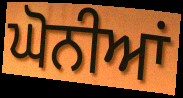
ਘੋਨੀਆਂ